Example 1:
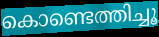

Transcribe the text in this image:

കൊണ്ടെത്തിച്ചൂ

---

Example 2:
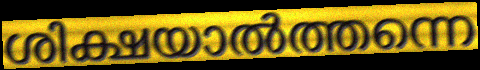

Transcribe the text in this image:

ശിക്ഷയാൽത്തന്നെ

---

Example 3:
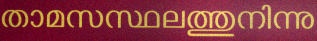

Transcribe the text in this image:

താമസസ്ഥലത്തുനിന്നു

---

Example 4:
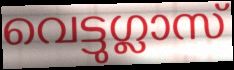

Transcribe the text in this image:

വെട്ടുഗ്ലാസ്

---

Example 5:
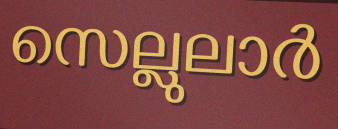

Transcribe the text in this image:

സെല്ലുലാർ